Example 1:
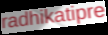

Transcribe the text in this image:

radhikatipre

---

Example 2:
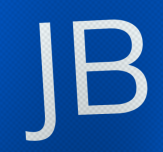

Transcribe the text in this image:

JB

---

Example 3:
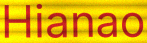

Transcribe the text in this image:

Hianao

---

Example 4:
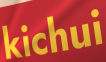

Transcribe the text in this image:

kichui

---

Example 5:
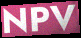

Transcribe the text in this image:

NPV